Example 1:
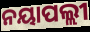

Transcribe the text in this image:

ନୟାପଲ୍ଲୀ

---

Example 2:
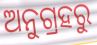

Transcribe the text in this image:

ଅନୁଗ୍ରହରୁ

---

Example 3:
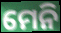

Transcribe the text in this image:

ମେନି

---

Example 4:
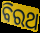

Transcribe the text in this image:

ବିରଥ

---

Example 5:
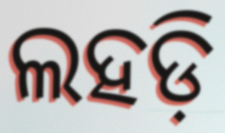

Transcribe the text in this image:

ଲହଡ଼ି